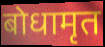
बोधामृत